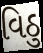
વિઠુ